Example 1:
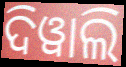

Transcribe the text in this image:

ଦିୱାଲି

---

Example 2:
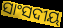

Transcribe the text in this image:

ସାଂସଦୀୟ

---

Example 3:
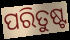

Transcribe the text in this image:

ପରିତୁଷ୍ଟ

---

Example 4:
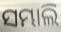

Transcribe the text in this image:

ସମ୍ଭାଲି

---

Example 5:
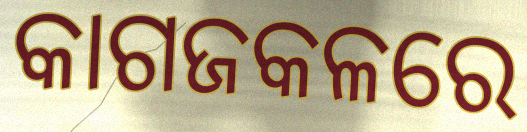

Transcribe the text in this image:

କାଗଜକଳରେ